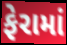
ફેરામાં